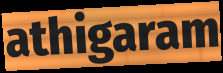
athigaram